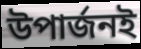
উপার্জনই